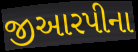
જીઆરપીના